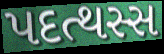
પદત્થસ્સ